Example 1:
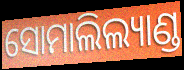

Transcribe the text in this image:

ସୋମାଲିଲ୍ୟାଣ୍ଡ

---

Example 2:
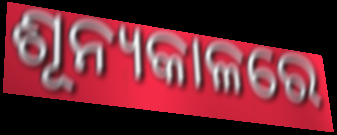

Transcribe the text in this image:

ଶୂନ୍ୟକାଳରେ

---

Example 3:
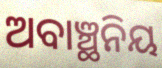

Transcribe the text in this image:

ଅବାଞ୍ଛନିୟ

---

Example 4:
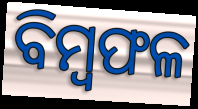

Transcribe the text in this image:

ବିମ୍ୱଫଳ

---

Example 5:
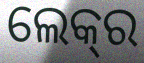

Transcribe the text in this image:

ଲେକ୍‍ର